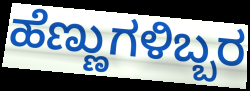
ಹೆಣ್ಣುಗಳಿಬ್ಬರ